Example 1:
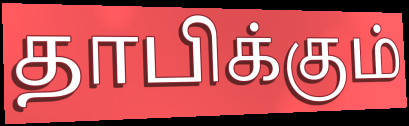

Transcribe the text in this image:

தாபிக்கும்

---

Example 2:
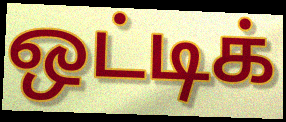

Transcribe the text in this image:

ஒட்டிக்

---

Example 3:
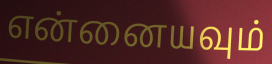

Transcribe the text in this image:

என்னையவும்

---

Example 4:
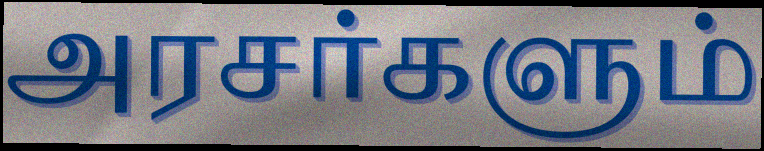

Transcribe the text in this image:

அரசர்களும்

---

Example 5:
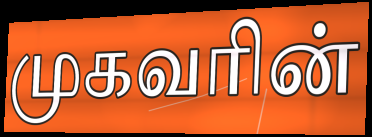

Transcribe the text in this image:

முகவரின்